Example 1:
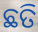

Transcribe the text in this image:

ଛତି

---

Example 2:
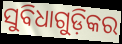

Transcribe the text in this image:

ସୁବିଧାଗୁଡ଼ିକର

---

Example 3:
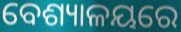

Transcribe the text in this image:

ବେଶ୍ୟାଳୟରେ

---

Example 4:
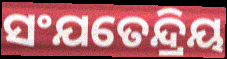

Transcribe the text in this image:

ସଂଯତେନ୍ଦ୍ରିୟ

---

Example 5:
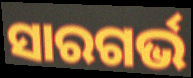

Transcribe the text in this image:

ସାରଗର୍ଭ